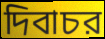
দিবাচর